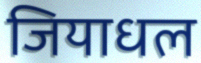
जियाधल